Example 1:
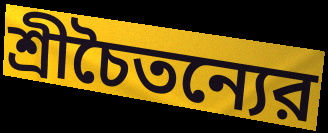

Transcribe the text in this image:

শ্রীচৈতন্যের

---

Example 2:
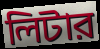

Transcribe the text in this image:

লিটার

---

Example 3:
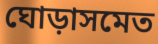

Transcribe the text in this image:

ঘোড়াসমেত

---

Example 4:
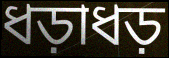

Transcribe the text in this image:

ধড়াধড়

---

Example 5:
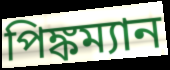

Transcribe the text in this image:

পিঙ্কম্যান